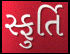
સ્ફુર્તિ